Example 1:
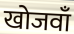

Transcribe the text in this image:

खोजवाँ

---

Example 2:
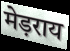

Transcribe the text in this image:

मेड़राय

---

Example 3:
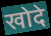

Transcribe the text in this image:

खोदे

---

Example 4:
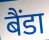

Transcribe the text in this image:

बैंडा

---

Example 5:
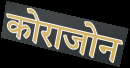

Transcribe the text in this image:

कोराजोन